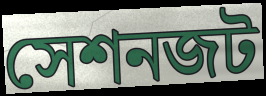
সেশনজট